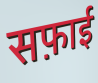
सफ़ाई